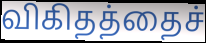
விகிதத்தைச்